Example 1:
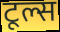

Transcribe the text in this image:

टूल्स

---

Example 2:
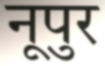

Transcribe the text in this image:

नूपुर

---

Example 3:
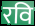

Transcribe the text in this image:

रवि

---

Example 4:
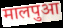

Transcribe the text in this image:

मालपुआ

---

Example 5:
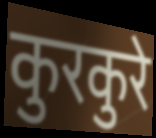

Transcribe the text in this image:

कुरकुरे